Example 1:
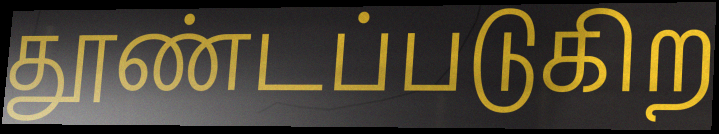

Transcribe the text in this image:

தூண்டப்படுகிற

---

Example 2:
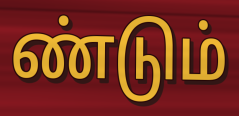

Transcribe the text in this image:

ண்டும்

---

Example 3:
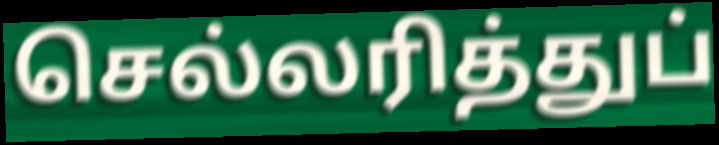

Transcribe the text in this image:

செல்லரித்துப்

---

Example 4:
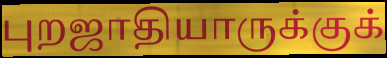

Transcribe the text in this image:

புறஜாதியாருக்குக்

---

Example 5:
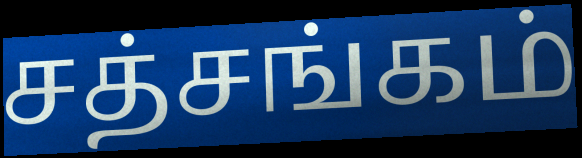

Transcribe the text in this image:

சத்சங்கம்